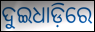
ଦୁଇଧାଡ଼ିରେ